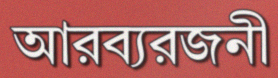
আরব্যরজনী